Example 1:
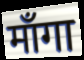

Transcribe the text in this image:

माँगा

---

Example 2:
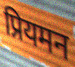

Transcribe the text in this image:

प्रियमन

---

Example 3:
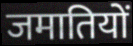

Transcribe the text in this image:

जमातियों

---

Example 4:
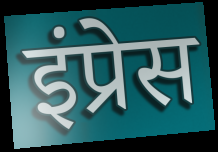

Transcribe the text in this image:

इंप्रेस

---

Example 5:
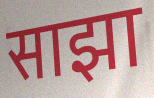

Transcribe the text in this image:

साझा